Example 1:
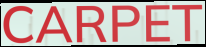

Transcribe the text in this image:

CARPET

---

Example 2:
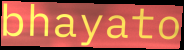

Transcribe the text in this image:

bhayato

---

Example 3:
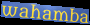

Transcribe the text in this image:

wahamba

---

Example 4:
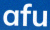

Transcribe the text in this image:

afu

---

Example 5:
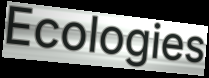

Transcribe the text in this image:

Ecologies